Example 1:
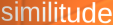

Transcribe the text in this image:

similitude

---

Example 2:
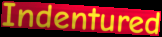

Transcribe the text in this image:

Indentured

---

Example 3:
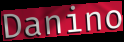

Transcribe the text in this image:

Danino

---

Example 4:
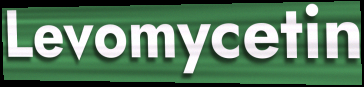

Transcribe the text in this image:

Levomycetin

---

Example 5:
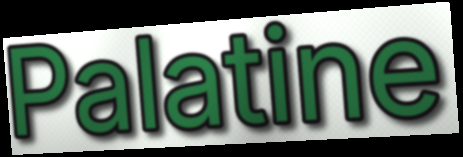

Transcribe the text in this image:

Palatine